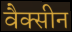
वैक्सीन